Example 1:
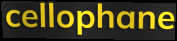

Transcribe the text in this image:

cellophane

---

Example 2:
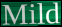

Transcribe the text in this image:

Mild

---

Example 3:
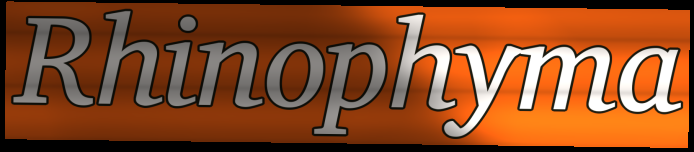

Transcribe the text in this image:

Rhinophyma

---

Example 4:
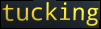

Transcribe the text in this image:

tucking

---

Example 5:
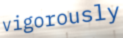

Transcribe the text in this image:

vigorously